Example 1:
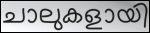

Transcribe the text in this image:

ചാലുകളായി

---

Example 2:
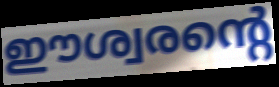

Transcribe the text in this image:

ഈശ്വരന്റെ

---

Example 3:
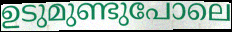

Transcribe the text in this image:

ഉടുമുണ്ടുപോലെ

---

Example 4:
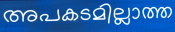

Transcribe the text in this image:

അപകടമില്ലാത്ത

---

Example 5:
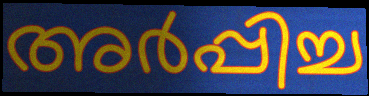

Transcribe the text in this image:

അർപ്പിച്ച